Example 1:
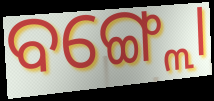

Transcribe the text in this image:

ବଙ୍ଗ୍ଲୋ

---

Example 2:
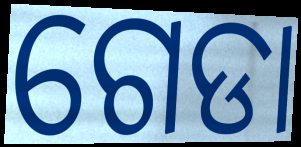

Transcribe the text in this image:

ଗେଡା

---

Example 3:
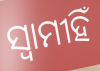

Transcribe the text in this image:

ସ୍ଵାମୀହିଁ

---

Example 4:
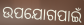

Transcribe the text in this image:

ଉପଯୋଗପାଇଁ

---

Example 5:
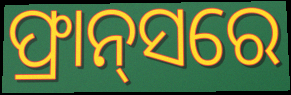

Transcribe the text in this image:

ଫ୍ରାନ୍‌ସରେ